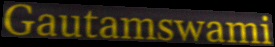
Gautamswami